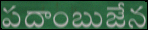
పదాంబుజేన